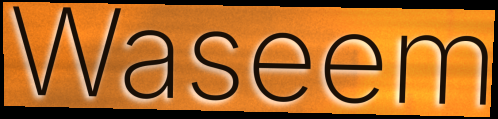
Waseem